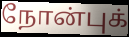
நோன்புக்